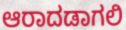
ಆರಾದಡಾಗಲಿ